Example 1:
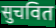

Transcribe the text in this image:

सुचवित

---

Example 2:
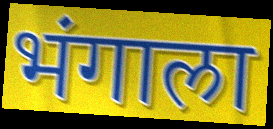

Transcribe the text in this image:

भंगाला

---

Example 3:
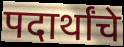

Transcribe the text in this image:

पदार्थांचे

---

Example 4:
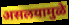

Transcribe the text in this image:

असलयामुळे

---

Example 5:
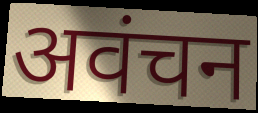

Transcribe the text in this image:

अवंचन